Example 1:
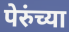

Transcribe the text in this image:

पेरुंच्या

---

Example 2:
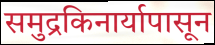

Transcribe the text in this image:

समुद्रकिनार्यापासून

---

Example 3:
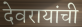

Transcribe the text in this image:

देवरायांची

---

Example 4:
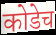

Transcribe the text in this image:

कोडेच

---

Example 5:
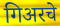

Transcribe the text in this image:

गिअरचे